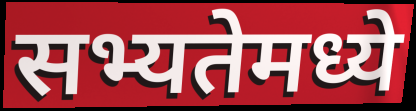
सभ्यतेमध्ये